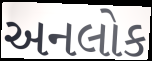
અનલોક